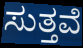
ಸುತ್ತವೆ